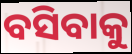
ବସିବାକୁ